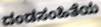
ದಂಡಸಂಹಿತೆಯ